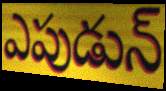
ఎపుడున్